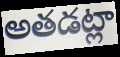
అతడట్లా